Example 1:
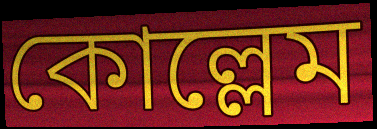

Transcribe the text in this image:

কোল্লেম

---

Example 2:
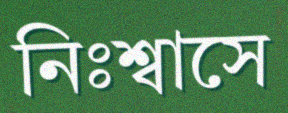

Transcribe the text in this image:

নিঃশ্বাসে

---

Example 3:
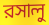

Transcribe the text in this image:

রসালু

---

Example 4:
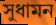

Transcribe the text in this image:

সুধামন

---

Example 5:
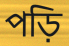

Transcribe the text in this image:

পড়ি